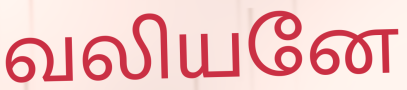
வலியனே